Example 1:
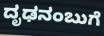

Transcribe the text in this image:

ದೃಢನಂಬುಗೆ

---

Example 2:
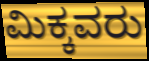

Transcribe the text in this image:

ಮಿಕ್ಕವರು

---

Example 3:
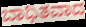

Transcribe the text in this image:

ಬಾಧಿತವಾದ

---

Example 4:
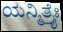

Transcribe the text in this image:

ಯನ್ಮಿತ್ರೈಃ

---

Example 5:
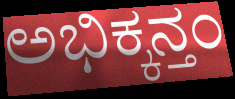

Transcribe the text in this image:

ಅಭಿಕ್ಕನ್ತಂ